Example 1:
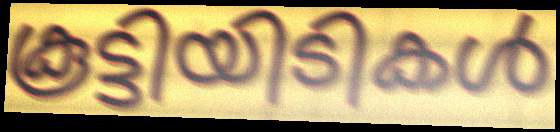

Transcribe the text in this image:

കൂട്ടിയിടികൾ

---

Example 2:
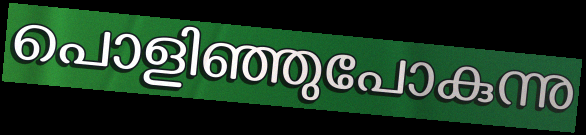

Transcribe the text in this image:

പൊളിഞ്ഞുപോകുന്നു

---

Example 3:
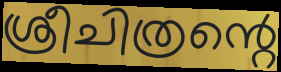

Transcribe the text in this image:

ശ്രീചിത്രന്റെ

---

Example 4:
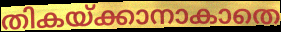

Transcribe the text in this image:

തികയ്ക്കാനാകാതെ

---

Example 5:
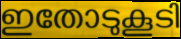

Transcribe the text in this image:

ഇതോടുകൂടി